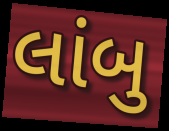
લાંબુ